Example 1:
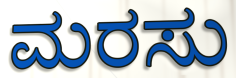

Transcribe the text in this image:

ಮರಸು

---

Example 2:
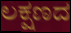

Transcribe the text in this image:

ಲಕ್ಷಣದ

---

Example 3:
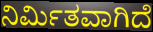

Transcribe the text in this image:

ನಿರ್ಮಿತವಾಗಿದೆ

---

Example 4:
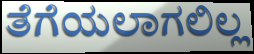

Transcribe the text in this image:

ತೆಗೆಯಲಾಗಲಿಲ್ಲ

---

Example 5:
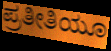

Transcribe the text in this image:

ಪ್ರತೀತಿಯೂ